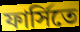
ফার্সিতে